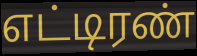
எட்டிரண்